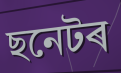
ছনেটৰ